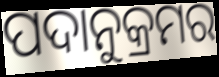
ପଦାନୁକ୍ରମର